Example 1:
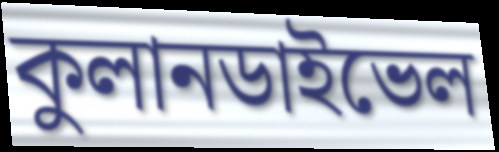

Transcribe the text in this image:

কুলানডাইভেল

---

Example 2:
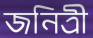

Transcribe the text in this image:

জনিত্রী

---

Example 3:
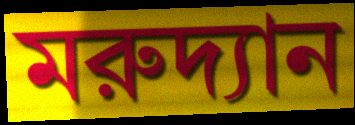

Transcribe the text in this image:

মরুদ্যান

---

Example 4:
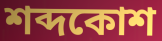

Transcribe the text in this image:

শব্দকোশ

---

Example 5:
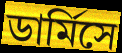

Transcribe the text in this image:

ডার্মিসে